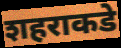
शहराकडे